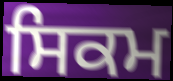
ਸਿਕਮ